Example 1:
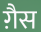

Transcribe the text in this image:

ग़ैस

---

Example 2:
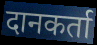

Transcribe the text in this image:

दानकर्ता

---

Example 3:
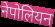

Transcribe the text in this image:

नेपोलियन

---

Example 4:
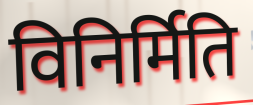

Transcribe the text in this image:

विनिर्मिति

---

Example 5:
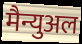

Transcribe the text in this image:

मैन्युअल